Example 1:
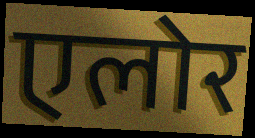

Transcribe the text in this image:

एलोर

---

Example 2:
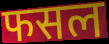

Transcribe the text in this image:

फसल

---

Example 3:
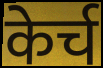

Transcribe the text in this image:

केर्च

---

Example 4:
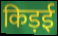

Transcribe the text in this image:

किड़ई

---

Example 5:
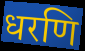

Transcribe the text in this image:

धरणि